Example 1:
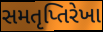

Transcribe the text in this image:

સમતૃપ્તિરેખા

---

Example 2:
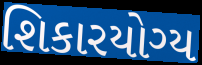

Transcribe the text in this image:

શિકારયોગ્ય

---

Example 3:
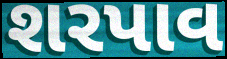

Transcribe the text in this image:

શરપાવ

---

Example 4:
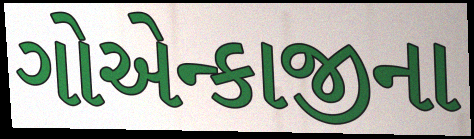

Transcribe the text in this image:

ગોએન્કાજીના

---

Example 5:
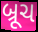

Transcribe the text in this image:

બ્રૂચ